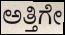
ಅತ್ತಿಗೇ